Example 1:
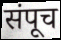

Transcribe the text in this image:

संपूच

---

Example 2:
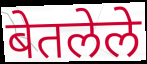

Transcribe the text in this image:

बेतलेले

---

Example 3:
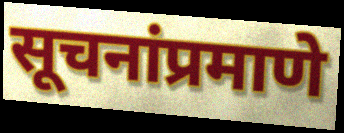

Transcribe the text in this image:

सूचनांप्रमाणे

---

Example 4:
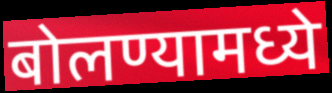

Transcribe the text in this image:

बोलण्यामध्ये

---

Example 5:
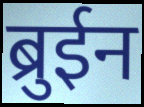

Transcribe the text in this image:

ब्रुईन